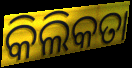
କିଲିକତା